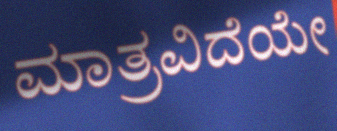
ಮಾತ್ರವಿದೆಯೇ